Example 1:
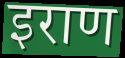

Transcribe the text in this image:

इराण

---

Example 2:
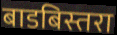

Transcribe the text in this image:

बाडबिस्तरा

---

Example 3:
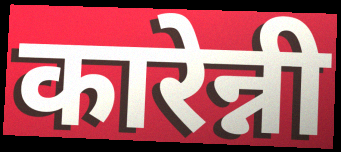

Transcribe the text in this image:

कारेन्नी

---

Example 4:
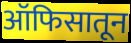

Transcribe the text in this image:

ऑफिसातून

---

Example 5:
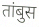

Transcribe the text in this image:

तांबुस